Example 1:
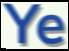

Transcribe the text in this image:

Ye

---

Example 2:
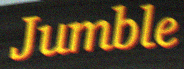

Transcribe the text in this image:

Jumble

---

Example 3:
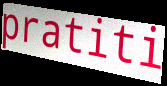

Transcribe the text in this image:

pratiti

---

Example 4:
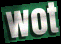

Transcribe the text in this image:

wot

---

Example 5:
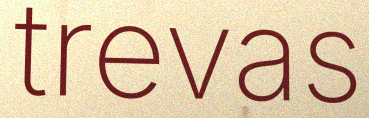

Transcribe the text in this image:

trevas